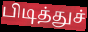
பிடித்துச்